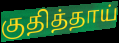
குதித்தாய்